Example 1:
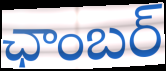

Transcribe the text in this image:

ఛాంబర్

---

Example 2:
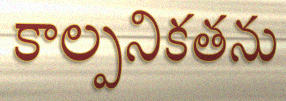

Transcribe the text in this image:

కాల్పనికతను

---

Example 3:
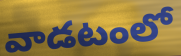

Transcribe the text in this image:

వాడటంలో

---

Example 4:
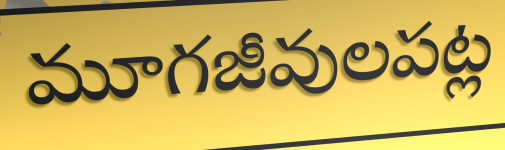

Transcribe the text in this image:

మూగజీవులపట్ల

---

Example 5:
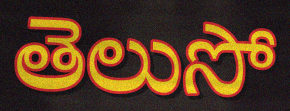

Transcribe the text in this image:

తెలుసో